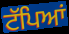
ਟੱਪਿਆਂ